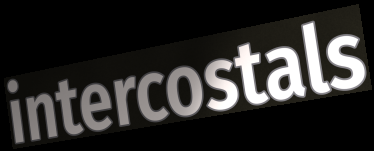
intercostals